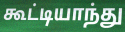
கூட்டியாந்து